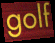
golf